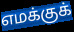
எமக்குக்